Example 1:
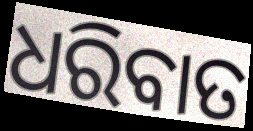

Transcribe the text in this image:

ଧରିବାତ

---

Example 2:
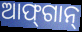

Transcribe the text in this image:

ଆଫ୍‌ଗାନ୍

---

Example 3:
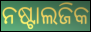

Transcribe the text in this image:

ନଷ୍ଟାଲଜିକ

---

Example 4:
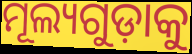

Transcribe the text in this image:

ମୂଲ୍ୟଗୁଡ଼ାକୁ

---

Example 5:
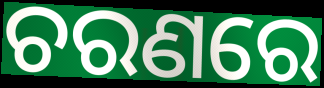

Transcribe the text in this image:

ଚରଣରେ